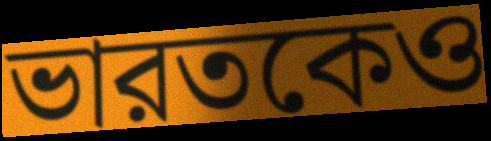
ভারতকেও